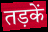
तड़कें